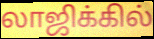
லாஜிக்கில்